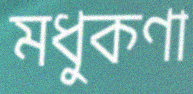
মধুকণা